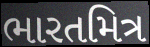
ભારતમિત્ર